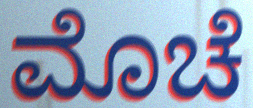
ಮೊಚೆ